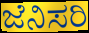
ಜೆನಿಸರಿ